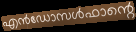
എൻഡോസൾഫാന്റെ